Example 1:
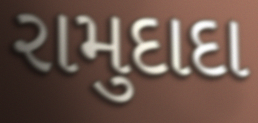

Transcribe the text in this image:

રામુદાદા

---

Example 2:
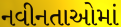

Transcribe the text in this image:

નવીનતાઓમાં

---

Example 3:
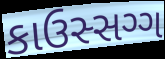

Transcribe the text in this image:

કાઉસ્સગ્ગ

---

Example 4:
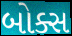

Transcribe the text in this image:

બોક્સ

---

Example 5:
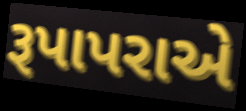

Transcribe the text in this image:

રૂપાપરાએ